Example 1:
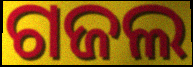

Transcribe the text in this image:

ଗଜଲ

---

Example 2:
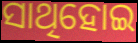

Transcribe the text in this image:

ସାଥିହୋଇ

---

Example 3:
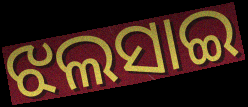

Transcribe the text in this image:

ଝଲସାଇ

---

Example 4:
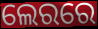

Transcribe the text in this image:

ଲେରରେ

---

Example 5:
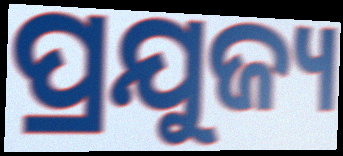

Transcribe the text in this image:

ପ୍ରଯୁଜ୍ୟ